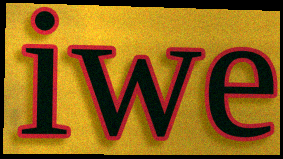
iwe